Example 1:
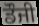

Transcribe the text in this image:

ਡੌਜੀ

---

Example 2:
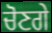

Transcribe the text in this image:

ਚੋਣਗੇ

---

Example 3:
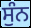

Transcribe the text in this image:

ਸੁੰਨ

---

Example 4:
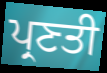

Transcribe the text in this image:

ਪ੍ਰਣਤੀ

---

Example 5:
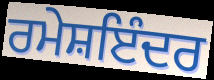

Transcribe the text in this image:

ਰਮੇਸ਼ਇੰਦਰ